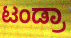
ಟಂಡ್ರಾ